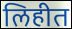
लिहीत